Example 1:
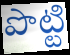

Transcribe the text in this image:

పొట్టి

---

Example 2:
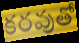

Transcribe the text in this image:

కరవుతో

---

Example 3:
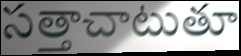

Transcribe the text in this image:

సత్తాచాటుతూ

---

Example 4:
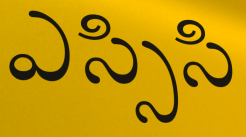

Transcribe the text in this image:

ఎస్సిసి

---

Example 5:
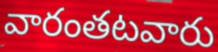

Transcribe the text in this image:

వారంతటవారు